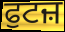
ਫੁਟਜ਼